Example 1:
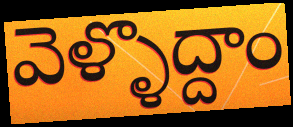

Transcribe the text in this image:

వెళ్ళొద్దాం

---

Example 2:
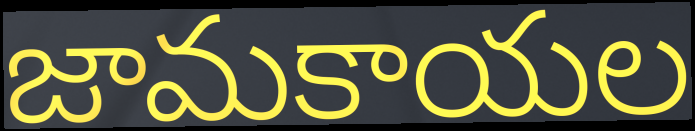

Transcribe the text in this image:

జామకాయల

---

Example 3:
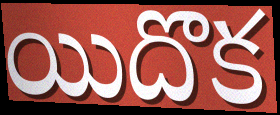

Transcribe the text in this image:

యిదొక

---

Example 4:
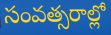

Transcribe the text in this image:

సంవత్సరాల్లో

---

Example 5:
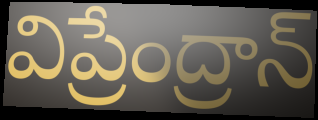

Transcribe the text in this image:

విప్రేంద్రాన్